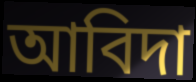
আবিদা